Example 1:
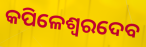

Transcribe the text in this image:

କପିଳେଶ୍ୱରଦେବ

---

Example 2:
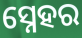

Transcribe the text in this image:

ସ୍ନେହର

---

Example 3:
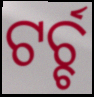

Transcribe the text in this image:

ଟର୍ଚ୍ଚ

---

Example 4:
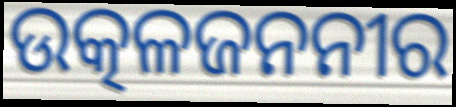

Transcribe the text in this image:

ଉତ୍କଳଜନନୀର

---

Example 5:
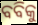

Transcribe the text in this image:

ବବିକୁ